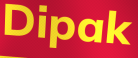
Dipak